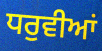
ਧਰੁਵੀਆਂ